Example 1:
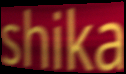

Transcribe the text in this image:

shika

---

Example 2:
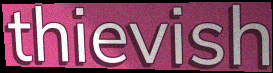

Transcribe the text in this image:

thievish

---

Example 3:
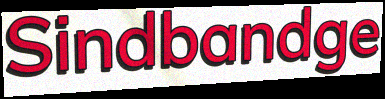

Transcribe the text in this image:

Sindbandge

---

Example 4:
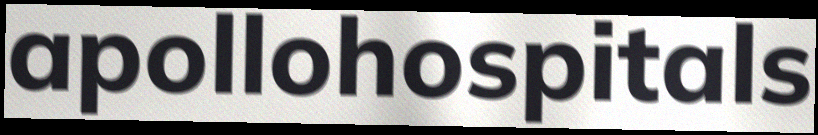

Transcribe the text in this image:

apollohospitals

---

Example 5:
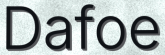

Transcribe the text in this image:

Dafoe